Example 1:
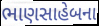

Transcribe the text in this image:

ભાણસાહેબના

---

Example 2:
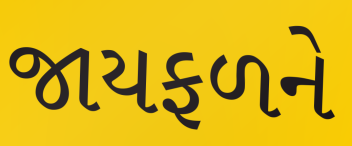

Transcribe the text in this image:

જાયફળને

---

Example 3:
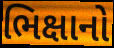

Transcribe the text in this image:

ભિક્ષાનો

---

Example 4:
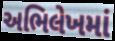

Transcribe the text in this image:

અભિલેખમાં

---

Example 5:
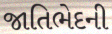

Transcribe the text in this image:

જાતિભેદની